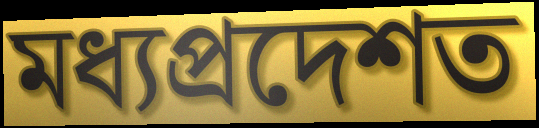
মধ্যপ্ৰদেশত